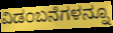
ವಿಡಂಬನೆಗಳನ್ನೂ